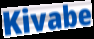
Kivabe